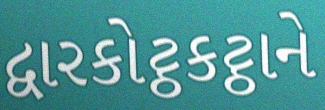
દ્વારકોટ્ઠકટ્ઠાને